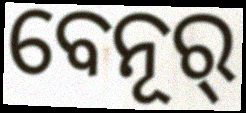
ବେନୂର୍